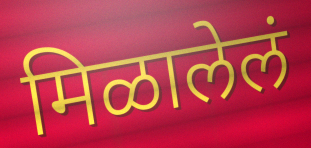
मिळालेलं